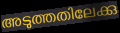
അടുത്തതിലേക്കു